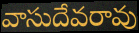
వాసుదేవరావు